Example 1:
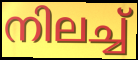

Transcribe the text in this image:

നിലച്ച്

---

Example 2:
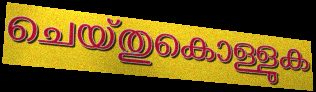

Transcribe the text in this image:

ചെയ്തുകൊള്ളുക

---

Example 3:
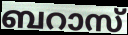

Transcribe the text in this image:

ബറാസ്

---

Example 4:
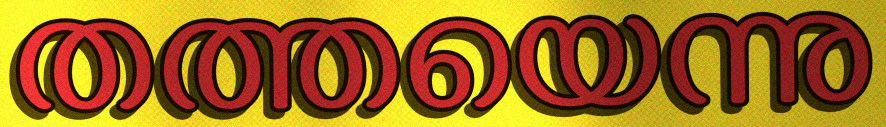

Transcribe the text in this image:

തത്തയെന്നു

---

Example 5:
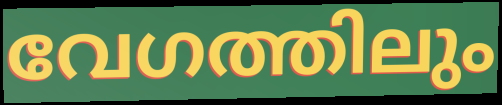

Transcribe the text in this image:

വേഗത്തിലും